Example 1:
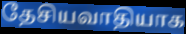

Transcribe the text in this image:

தேசியவாதியாக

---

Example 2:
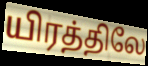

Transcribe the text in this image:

யிரத்திலே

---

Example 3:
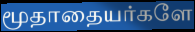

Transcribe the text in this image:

மூதாதையர்களே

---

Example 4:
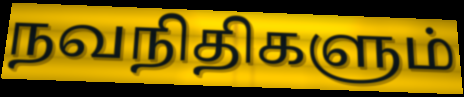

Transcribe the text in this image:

நவநிதிகளும்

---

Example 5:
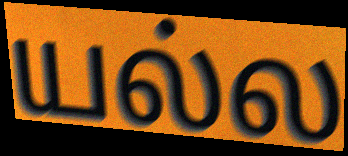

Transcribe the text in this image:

யல்ல